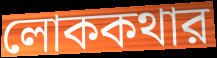
লোককথার